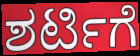
ಶರ್ಟಿಗೆ